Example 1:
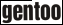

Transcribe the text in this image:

gentoo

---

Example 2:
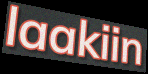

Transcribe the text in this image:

laakiin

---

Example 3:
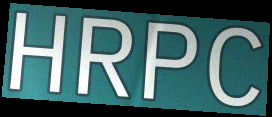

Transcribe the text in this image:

HRPC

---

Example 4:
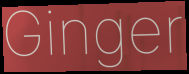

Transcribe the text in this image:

Ginger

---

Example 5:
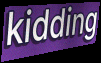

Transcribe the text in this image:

kidding